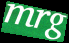
mrg